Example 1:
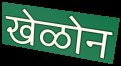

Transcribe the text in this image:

खेळोन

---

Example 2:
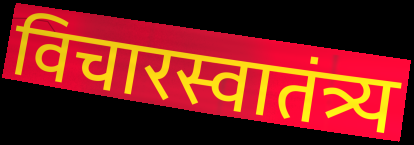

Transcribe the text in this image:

विचारस्वातंत्र्य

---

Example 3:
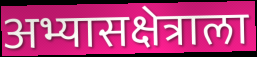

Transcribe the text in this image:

अभ्यासक्षेत्राला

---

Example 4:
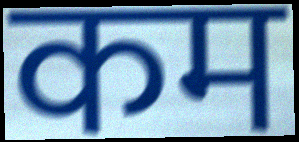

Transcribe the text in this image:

कम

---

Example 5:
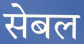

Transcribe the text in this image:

सेबल